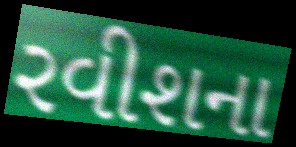
રવીશના